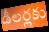
డీలర్లకు